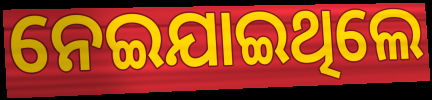
ନେଇଯାଇଥିଲେ